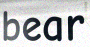
bear